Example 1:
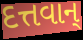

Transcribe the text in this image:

દત્તવાન્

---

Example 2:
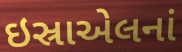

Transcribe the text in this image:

ઇસ્રાએલનાં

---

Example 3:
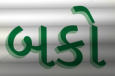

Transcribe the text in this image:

બકો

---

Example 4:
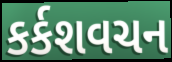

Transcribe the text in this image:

કર્કશવચન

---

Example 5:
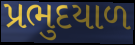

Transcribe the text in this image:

પ્રભુદયાળ